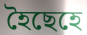
হৈছেহে